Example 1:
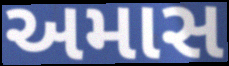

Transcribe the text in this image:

અમાસ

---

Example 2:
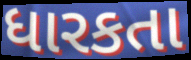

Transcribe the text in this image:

ધારકતા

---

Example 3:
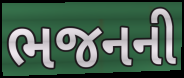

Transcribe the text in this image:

ભજનની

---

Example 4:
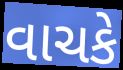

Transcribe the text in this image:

વાચકે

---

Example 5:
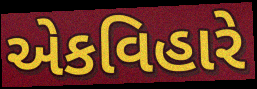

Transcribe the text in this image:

એકવિહારે